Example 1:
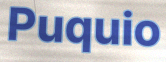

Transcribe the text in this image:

Puquio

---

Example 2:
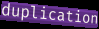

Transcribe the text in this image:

duplication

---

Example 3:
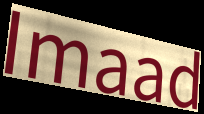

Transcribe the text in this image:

Imaad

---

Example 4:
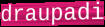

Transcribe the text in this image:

draupadi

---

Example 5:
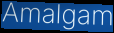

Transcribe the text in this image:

Amalgam